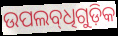
ଉପଲବ୍‌ଧିଗୁଡ଼ିକ